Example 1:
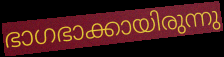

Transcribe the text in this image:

ഭാഗഭാക്കായിരുന്നു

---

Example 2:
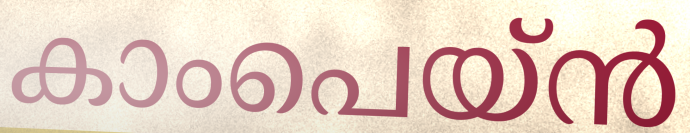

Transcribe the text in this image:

കാംപെയ്ൻ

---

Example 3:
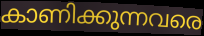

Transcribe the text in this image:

കാണിക്കുന്നവരെ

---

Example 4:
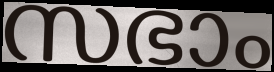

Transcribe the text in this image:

സഭാം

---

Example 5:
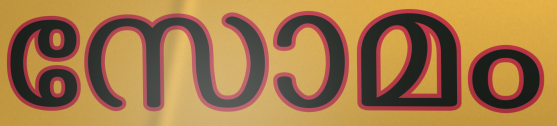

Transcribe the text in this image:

സോമം